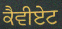
ਕੈਵੀਏਟ